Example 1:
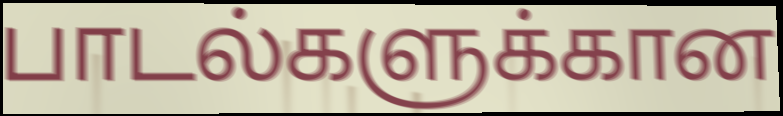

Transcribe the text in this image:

பாடல்களுக்கான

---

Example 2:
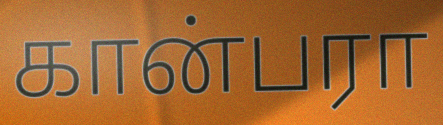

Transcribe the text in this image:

கான்பரா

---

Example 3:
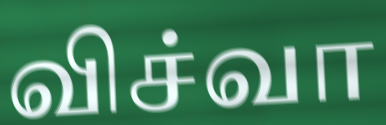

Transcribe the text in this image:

விச்வா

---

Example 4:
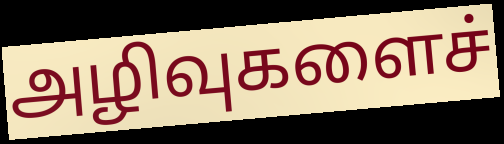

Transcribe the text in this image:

அழிவுகளைச்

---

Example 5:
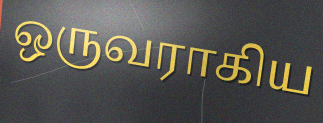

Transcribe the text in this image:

ஒருவராகிய